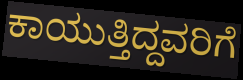
ಕಾಯುತ್ತಿದ್ದವರಿಗೆ